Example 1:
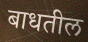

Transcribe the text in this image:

बाधतील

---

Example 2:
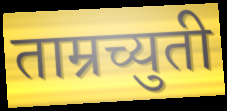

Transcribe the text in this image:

ताम्रच्युती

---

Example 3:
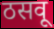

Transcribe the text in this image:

ठसवू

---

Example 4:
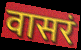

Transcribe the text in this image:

वासरं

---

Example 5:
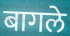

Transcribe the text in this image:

बागले